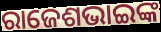
ରାଜେଶଭାଇଙ୍କ